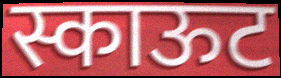
स्काऊट